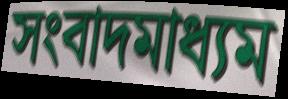
সংবাদমাধ্যম